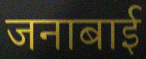
जनाबाई